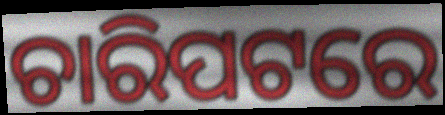
ଚାରିପଟରେ